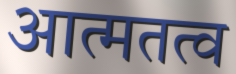
आत्मतत्व